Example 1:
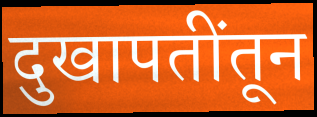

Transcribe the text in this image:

दुखापतींतून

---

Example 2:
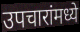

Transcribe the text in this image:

उपचारांमध्ये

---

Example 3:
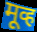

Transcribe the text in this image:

मूव्ह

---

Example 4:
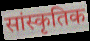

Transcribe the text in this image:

सांस्‍कृतिक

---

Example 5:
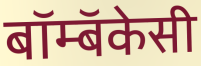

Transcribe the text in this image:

बॉम्बॅकेसी